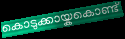
കൊടുക്കായ്കകൊണ്ട്